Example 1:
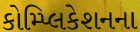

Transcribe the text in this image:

કોમ્પ્લિકેશનના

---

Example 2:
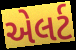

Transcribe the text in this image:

એલર્ટ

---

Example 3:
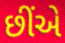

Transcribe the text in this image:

છીંએ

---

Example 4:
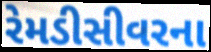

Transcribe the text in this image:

રેમડીસીવરના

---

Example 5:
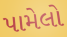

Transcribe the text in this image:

પામેલો